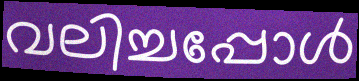
വലിച്ചപ്പോൾ